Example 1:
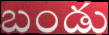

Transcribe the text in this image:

బండు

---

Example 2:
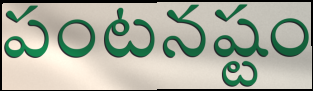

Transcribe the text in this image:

పంటనష్టం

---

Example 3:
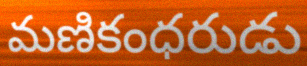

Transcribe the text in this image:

మణికంధరుడు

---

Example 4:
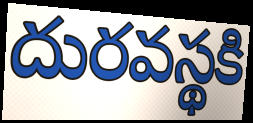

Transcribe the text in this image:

దురవస్థకి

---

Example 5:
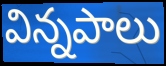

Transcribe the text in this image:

విన్నపాలు